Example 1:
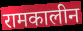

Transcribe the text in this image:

रामकालीन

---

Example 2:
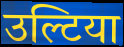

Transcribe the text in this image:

उल्टिया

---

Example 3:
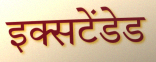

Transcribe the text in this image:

इक्सटेंडेड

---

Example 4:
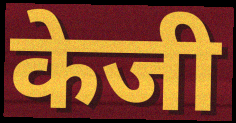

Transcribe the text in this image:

केजी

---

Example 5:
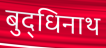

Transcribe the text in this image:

बुद्धिनाथ